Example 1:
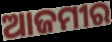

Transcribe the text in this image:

ଆଜମୀର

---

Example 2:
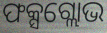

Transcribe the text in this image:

ଫକ୍ସଗ୍ଲୋଭ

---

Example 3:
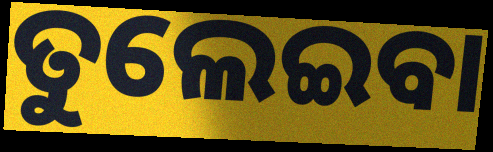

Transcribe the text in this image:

ତୁଲେଇବା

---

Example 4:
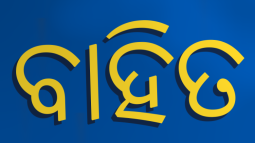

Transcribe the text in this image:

ବାହିତ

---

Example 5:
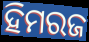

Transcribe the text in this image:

ହିମରଜ